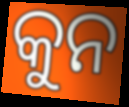
କୁନ